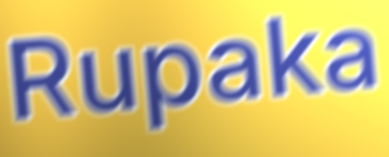
Rupaka